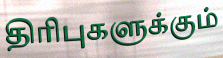
திரிபுகளுக்கும்